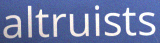
altruists